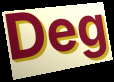
Deg